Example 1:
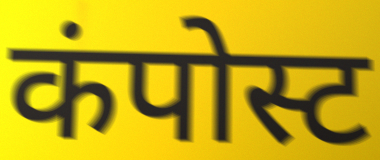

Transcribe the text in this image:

कंपोस्ट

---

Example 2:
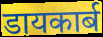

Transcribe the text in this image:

डायकार्ब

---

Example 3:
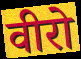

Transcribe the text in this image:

वीरो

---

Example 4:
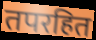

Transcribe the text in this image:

तपरहित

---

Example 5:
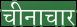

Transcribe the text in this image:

चीनाचार